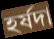
হর্ষদা